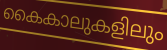
കൈകാലുകളിലും